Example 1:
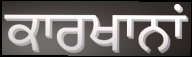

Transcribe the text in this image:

ਕਾਰਖਾਨਾਂ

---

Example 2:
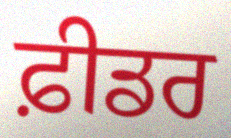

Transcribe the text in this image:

ਫ਼ੀਡਰ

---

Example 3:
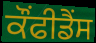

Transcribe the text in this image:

ਕੌਂਫੀਡੈਂਸ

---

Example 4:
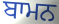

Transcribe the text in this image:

ਬਾਮਨ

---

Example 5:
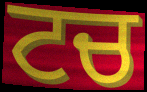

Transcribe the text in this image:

ਟਚ